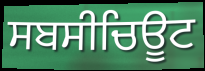
ਸਬਸੀਚਿਊਟ